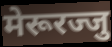
मेरूरज्जु